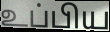
உப்பிய